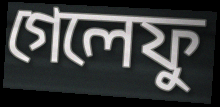
গেলেফু